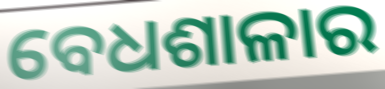
ବେଧଶାଳାର